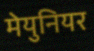
मेयुनियर